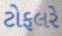
ટોફલરે